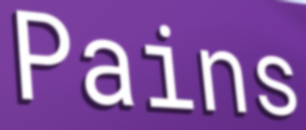
Pains